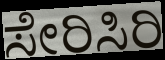
ಸೇರಿಸಿರಿ